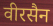
वीरसैन